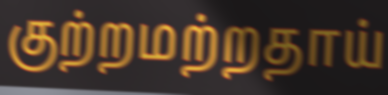
குற்றமற்றதாய்